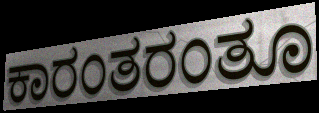
ಕಾರಂತರಂತೂ